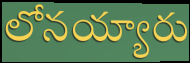
లోనయ్యారు